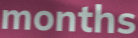
months